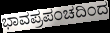
ಭಾವಪ್ರಪಂಚದಿಂದ